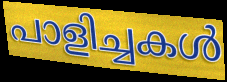
പാളിച്ചകൾ